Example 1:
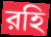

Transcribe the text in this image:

রহি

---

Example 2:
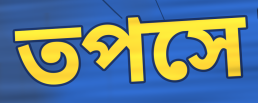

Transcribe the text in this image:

তপসে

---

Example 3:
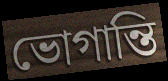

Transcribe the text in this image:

ভোগান্তি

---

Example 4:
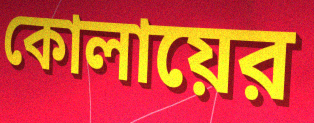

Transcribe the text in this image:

কোলায়ের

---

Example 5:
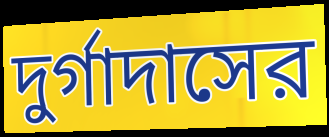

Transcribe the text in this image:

দুর্গাদাসের